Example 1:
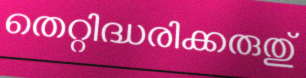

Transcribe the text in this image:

തെറ്റിദ്ധരിക്കരുതു്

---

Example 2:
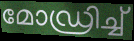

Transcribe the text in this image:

മോഡ്രിച്ച്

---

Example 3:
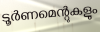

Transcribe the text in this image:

ടൂർണമെന്റുകളും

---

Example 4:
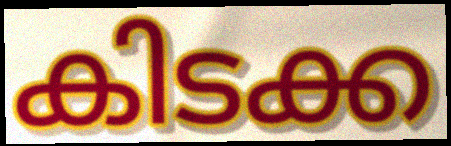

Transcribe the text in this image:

കിടക്ക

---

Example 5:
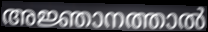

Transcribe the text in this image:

അജ്ഞാനത്താൽ